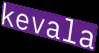
kevala